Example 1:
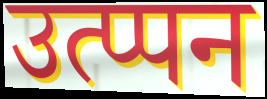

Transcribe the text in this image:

उत्प्पन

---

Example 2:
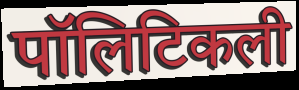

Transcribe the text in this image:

पॉलिटिकली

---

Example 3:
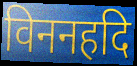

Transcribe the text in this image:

विननहदि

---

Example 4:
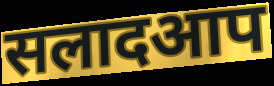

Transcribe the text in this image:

सलादआप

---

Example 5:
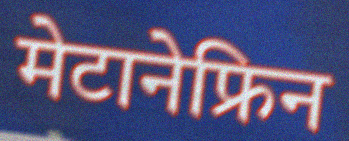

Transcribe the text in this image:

मेटानेफ्रिन